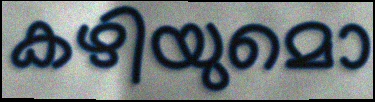
കഴിയുമൊ